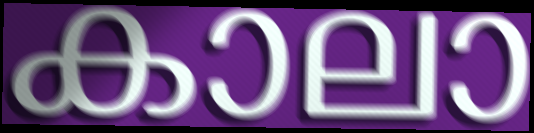
കാലാ